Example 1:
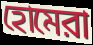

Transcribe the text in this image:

হোমেরা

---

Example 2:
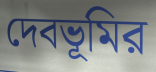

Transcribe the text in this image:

দেবভূমির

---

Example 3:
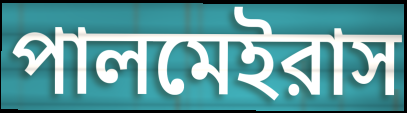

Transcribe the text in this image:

পালমেইরাস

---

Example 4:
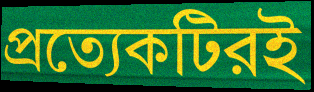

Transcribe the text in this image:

প্রত্যেকটিরই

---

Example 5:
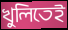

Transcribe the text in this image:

খুলিতেই